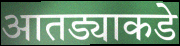
आतड्याकडे